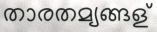
താരതമ്യങ്ങള്